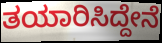
ತಯಾರಿಸಿದ್ದೇನೆ